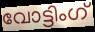
വോട്ടിംഗ്